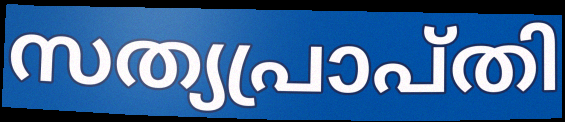
സത്യപ്രാപ്തി